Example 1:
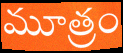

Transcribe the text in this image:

మూత్రం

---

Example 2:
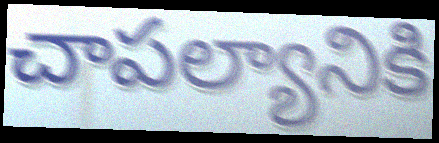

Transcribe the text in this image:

చాపల్యానికి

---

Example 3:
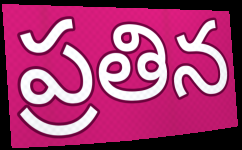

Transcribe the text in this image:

ప్రతిన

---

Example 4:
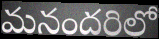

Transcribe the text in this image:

మనందరిలో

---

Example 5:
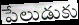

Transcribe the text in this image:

పేలుడుకు